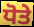
ਧੋਤੇ